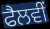
ਫੈਲਵੀਂ